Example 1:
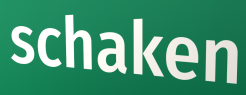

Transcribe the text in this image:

schaken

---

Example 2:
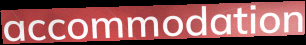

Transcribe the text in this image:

accommodation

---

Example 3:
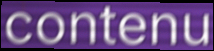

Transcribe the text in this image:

contenu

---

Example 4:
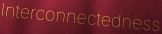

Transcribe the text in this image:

Interconnectedness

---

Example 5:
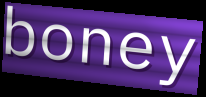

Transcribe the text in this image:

boney